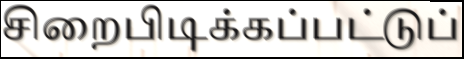
சிறைபிடிக்கப்பட்டுப்